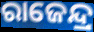
ରାଜେନ୍ଦ୍ର